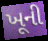
ખૂની